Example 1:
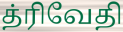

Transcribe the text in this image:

த்ரிவேதி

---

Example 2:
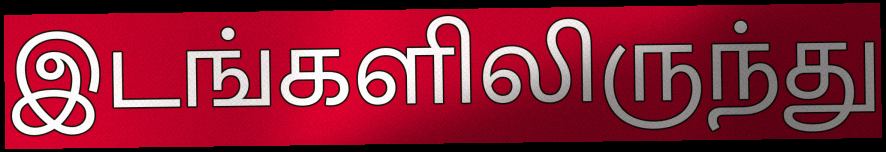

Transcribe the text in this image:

இடங்களிலிருந்து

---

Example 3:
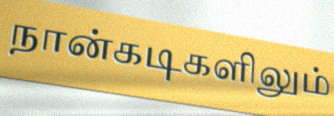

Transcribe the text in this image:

நான்கடிகளிலும்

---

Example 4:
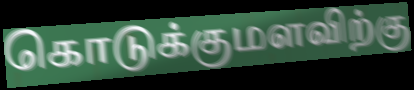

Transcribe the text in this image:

கொடுக்குமளவிற்கு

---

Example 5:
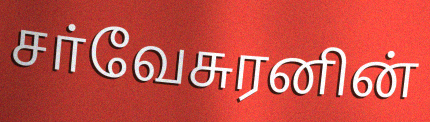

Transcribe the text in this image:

சர்வேசுரனின்